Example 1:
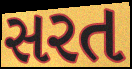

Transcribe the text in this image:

સરત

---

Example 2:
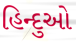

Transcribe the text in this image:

હિન્દુઓ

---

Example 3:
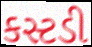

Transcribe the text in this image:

કસ્ટડી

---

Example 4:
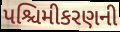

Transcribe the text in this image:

પશ્ચિમીકરણની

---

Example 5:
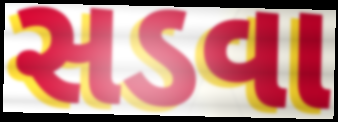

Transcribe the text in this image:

સડવા